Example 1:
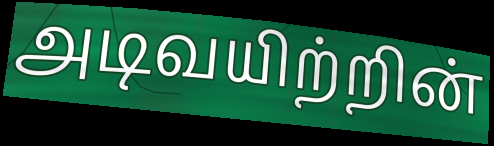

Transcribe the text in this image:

அடிவயிற்றின்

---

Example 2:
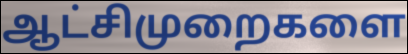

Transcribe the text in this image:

ஆட்சிமுறைகளை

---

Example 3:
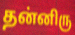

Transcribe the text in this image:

தன்னிரு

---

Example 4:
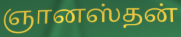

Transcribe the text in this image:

ஞானஸ்தன்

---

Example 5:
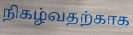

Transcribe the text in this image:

நிகழ்வதற்காக